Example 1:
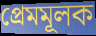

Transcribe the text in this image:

প্ৰেমমূলক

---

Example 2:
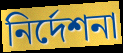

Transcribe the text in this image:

নিৰ্দেশনা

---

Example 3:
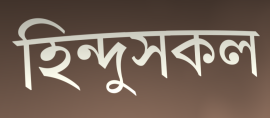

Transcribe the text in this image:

হিন্দুসকল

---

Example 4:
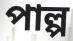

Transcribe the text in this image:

পাল্প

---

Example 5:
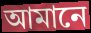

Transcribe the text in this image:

আমানে